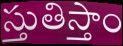
స్తుతిస్తాం